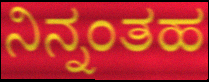
ನಿನ್ನಂತಹ